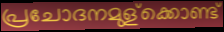
പ്രചോദനമുള്ക്കൊണ്ട്